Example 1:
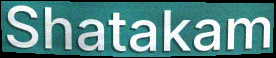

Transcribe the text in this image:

Shatakam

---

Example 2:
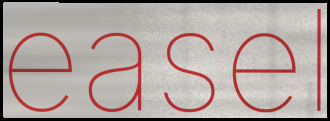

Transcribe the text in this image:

easel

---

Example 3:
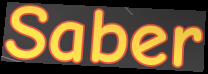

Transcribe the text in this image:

Saber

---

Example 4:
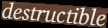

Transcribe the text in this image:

destructible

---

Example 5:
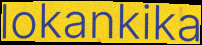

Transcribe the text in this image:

lokankika